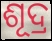
ଶୂଦ୍ର